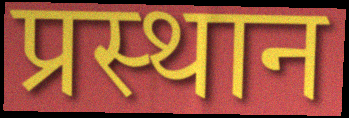
प्रस्थान